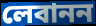
লেবানন